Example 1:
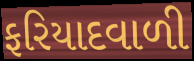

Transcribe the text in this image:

ફરિયાદવાળી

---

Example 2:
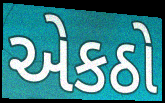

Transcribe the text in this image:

એકઠો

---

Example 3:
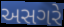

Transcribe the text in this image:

અસગરે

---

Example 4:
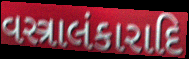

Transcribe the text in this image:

વસ્ત્રાલંકારાદિ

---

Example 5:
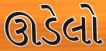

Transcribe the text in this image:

ઊડેલો